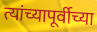
त्यांच्यापूर्वीच्या